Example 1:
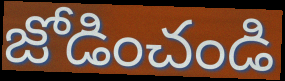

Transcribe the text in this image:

జోడించండి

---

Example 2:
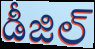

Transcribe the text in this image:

డీజిల్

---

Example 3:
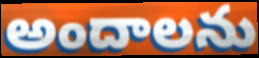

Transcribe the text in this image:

అందాలను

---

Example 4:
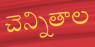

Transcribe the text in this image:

చెన్నితాల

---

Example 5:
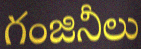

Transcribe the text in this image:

గంజినీలు